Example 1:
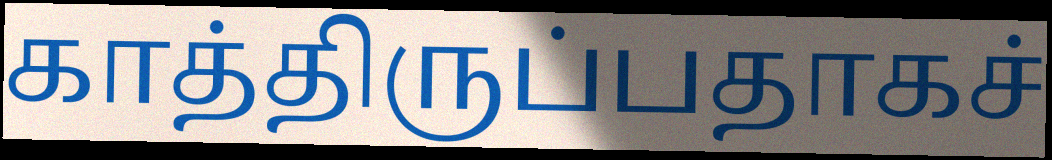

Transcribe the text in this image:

காத்திருப்பதாகச்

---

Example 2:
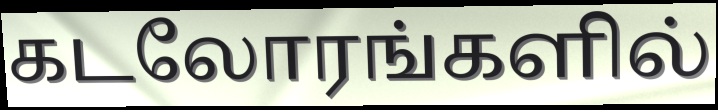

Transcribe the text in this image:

கடலோரங்களில்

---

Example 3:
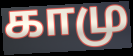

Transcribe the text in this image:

காமு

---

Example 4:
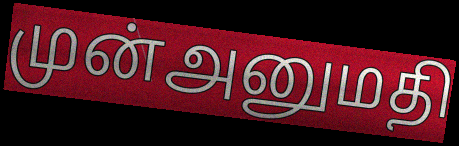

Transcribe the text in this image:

முன்அனுமதி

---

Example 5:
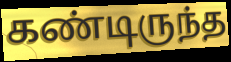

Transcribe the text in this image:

கண்டிருந்த